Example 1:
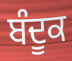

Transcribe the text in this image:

ਬੰਦੂਕ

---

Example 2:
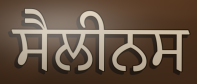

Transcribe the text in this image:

ਸੈਲੀਨਸ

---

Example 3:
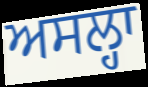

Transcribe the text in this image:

ਅਸਲ੍ਹਾ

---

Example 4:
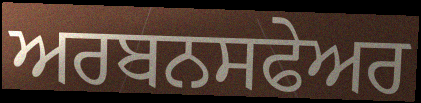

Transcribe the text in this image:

ਅਰਬਨਸਫੇਅਰ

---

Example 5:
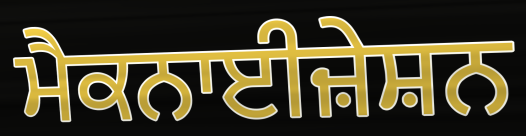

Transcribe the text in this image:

ਮੈਕਨਾਈਜ਼ੇਸ਼ਨ